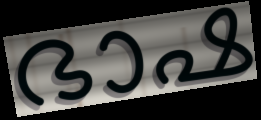
ഭാഷ